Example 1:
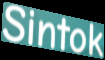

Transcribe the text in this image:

Sintok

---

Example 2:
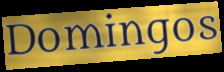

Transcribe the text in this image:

Domingos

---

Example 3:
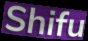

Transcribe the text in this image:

Shifu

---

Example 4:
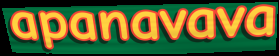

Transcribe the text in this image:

apanavava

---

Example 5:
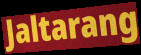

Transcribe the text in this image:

Jaltarang